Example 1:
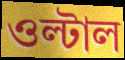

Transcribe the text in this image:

ওল্টাল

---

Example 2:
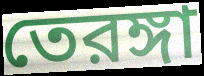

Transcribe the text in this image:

তেরঙ্গা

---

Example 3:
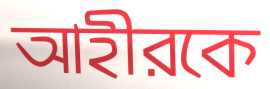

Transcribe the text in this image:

আহীরকে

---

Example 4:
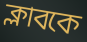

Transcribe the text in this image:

ক্লাবকে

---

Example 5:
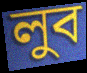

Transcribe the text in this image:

লুব